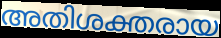
അതിശക്തരായ